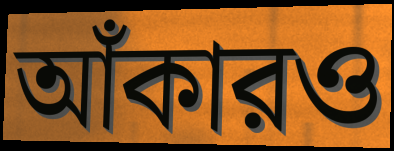
আঁকারও